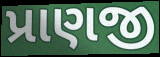
પ્રાણજી